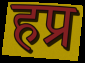
हप्र